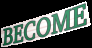
BECOME